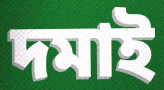
দমাই